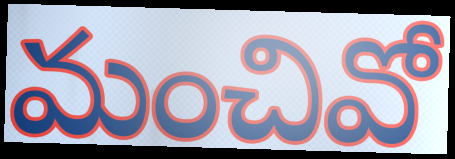
మంచివో